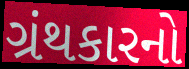
ગ્રંથકારનો